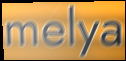
melya